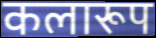
कलारूप